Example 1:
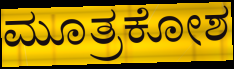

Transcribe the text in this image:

ಮೂತ್ರಕೋಶ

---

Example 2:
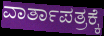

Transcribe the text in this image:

ವಾರ್ತಾಪತ್ರಕ್ಕೆ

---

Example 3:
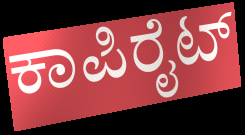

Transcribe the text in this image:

ಕಾಪಿರೈಟ್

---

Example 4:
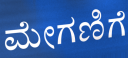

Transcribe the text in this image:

ಮೇಗಣಿಗೆ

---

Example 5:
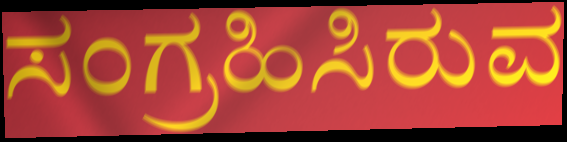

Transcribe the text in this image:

ಸಂಗ್ರಹಿಸಿರುವ